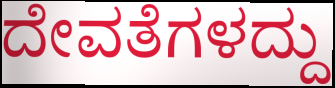
ದೇವತೆಗಳದ್ದು